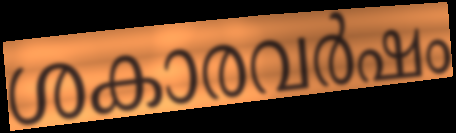
ശകാരവർഷം